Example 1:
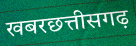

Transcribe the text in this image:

खबरछत्तीसगढ़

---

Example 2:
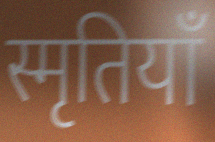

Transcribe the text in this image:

स्मृतियाँ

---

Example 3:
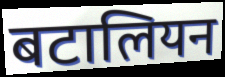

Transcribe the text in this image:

बटालियन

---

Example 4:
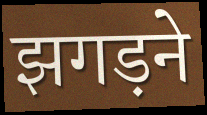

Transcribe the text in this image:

झगड़ने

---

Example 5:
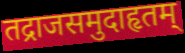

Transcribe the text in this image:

तद्राजसमुदाहृतम्